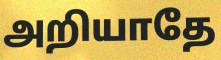
அறியாதே